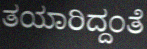
ತಯಾರಿದ್ದಂತೆ